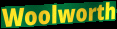
Woolworth